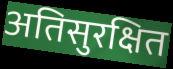
अतिसुरक्षित